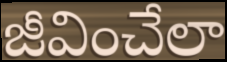
జీవించేలా